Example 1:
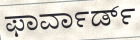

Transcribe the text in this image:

ಫಾರ್ವಾರ್ಡ್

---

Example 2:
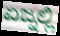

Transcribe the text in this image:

ಏಜ್ನಲ್ಲಿ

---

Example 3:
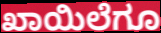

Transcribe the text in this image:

ಖಾಯಿಲೆಗೂ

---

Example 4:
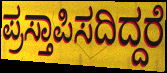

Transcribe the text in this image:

ಪ್ರಸ್ತಾಪಿಸದಿದ್ದರೆ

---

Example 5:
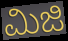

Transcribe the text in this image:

ಮಿಜಿ